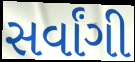
સર્વાંગી